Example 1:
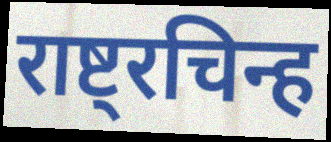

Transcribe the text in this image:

राष्ट्रचिन्ह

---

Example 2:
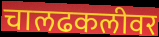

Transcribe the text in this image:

चालढकलीवर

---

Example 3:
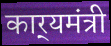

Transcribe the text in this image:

कार्यमंत्री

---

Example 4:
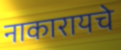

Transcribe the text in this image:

नाकारायचे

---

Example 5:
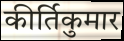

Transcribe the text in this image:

कीर्तिकुमार